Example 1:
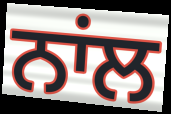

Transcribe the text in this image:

ਨਾਂਲ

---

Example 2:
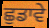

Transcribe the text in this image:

ਛੁਡਾਵੇ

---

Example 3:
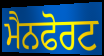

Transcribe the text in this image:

ਮੈਨਫੋਰਟ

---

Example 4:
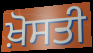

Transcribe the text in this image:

ਖ਼ੋਸਤੀ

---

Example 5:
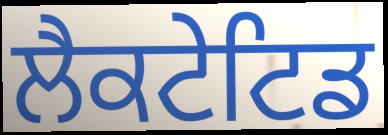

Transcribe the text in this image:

ਲੈਕਟੇਟਿਡ